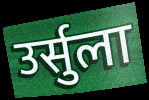
उर्सुला